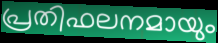
പ്രതിഫലനമായും